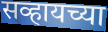
सव्हायच्या